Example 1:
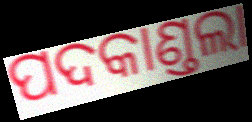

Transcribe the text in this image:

ପଦକାଣ୍ଡଲା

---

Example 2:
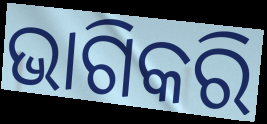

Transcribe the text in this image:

ଭାଗିକରି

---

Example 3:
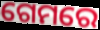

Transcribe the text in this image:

ଗେମରେ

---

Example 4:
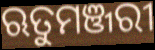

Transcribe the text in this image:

ଋତୁମଞ୍ଜରୀ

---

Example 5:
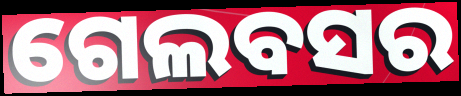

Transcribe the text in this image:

ଗେଲବସର